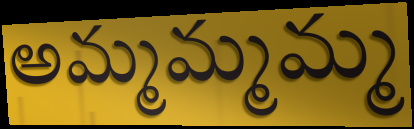
అమ్మమ్మమ్మ